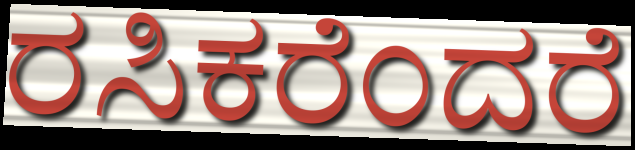
ರಸಿಕರೆಂದರೆ